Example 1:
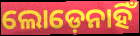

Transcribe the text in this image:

ଲୋଡ଼େନାହିଁ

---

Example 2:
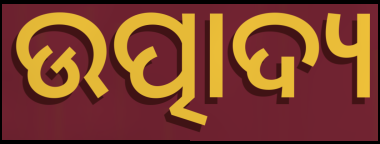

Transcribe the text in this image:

ଉତ୍ପାଦ୍ୟ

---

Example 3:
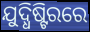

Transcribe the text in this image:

ଯୁଦ୍ଧିଷ୍ଟିରରେ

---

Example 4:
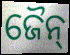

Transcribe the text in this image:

ଜୈନ୍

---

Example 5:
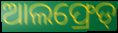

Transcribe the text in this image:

ଆଲଫ୍ରେଡ୍